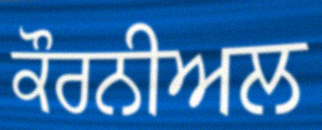
ਕੌਰਨੀਅਲ